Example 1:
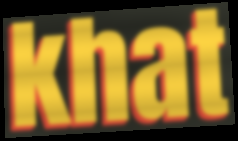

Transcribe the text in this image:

khat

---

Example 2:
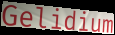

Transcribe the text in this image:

Gelidium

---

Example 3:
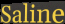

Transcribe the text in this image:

Saline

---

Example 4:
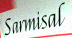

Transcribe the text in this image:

Sarmisal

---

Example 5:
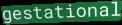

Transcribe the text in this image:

gestational